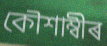
কৌশাম্বীৰ